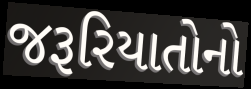
જરૂરિયાતોનો